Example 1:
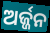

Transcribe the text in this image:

ଅର୍ଜ୍ଜନ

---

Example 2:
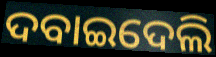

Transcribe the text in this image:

ଦବାଇଦେଲି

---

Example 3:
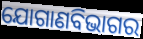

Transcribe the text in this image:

ଯୋଗାଣବିଭାଗର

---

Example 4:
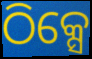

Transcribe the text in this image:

ଠିକ୍ସେ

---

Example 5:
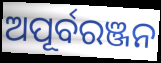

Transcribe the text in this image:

ଅପୂର୍ବରଞ୍ଜନ